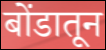
बोंडातून